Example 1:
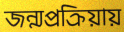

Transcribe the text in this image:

জন্মপ্রক্রিয়ায়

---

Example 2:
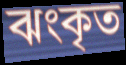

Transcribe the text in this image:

ঝংকৃত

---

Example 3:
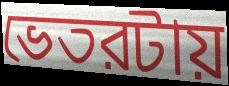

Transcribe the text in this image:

ভেতরটায়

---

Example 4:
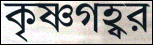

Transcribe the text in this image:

কৃষ্ণগহ্বর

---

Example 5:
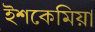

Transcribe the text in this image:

ইশকেমিয়া